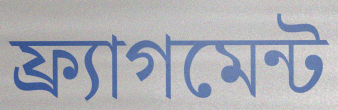
ফ্র্যাগমেন্ট